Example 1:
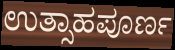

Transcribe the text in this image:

ಉತ್ಸಾಹಪೂರ್ಣ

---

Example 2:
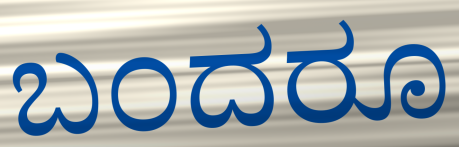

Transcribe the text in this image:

ಬಂದರೂ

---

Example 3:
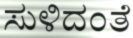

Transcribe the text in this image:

ಸುಳಿದಂತೆ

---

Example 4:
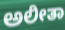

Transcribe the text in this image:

ಅಲೀತಾ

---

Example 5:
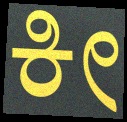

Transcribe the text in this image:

ಕೀ